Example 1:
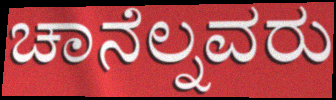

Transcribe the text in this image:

ಚಾನೆಲ್ನವರು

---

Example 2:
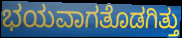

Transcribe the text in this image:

ಭಯವಾಗತೊಡಗಿತ್ತು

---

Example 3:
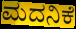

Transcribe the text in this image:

ಮದನಿಕೆ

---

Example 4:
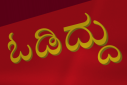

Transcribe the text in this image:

ಓಡಿದ್ದು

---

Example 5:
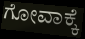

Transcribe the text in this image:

ಗೋವಾಕ್ಕೆ